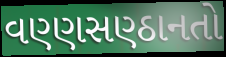
વણ્ણસણ્ઠાનતો